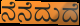
ನೆನೆದುದೆ